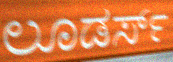
ಲೂಡರ್ಸ್